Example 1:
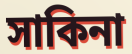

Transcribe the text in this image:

সাকিনা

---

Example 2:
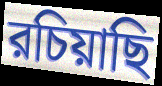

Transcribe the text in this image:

রচিয়াছি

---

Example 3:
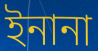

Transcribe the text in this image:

ইনানা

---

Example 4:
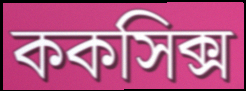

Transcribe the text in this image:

ককসিক্স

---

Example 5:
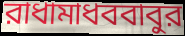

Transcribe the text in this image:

রাধামাধববাবুর